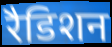
रैडिशन